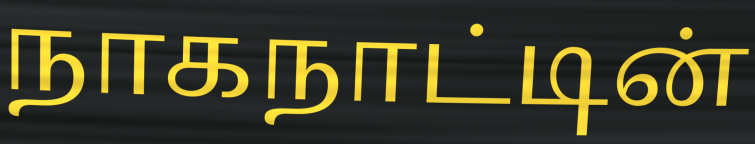
நாகநாட்டின்